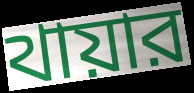
থায়ার